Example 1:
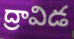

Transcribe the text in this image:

ద్రావిడ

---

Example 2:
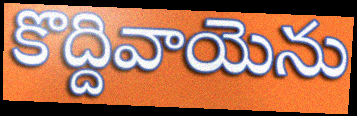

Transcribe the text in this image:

కొద్దివాయెను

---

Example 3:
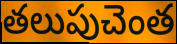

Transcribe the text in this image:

తలుపుచెంత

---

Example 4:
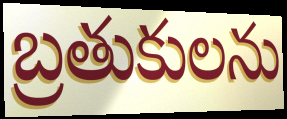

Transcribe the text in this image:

బ్రతుకులను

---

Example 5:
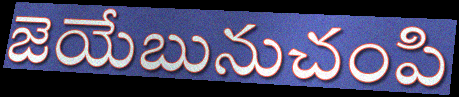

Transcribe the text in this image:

జెయేబునుచంపి